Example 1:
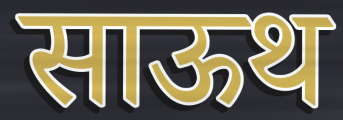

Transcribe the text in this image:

साऊथ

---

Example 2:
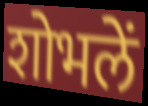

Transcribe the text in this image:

शोभलें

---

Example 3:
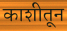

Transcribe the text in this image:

काशीतून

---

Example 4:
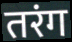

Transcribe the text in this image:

तरंग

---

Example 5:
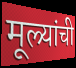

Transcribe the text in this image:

मूल्यांची